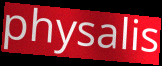
physalis